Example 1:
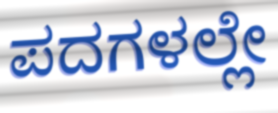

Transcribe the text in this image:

ಪದಗಳಲ್ಲೇ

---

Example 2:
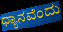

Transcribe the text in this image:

ಧ್ಯಾನವೆಂದು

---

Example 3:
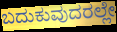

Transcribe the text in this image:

ಬದುಕುವುದರಲ್ಲೇ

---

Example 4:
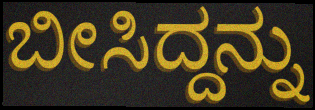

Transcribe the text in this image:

ಬೀಸಿದ್ದನ್ನು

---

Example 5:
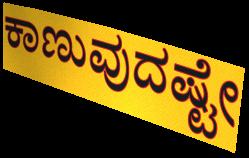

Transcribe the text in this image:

ಕಾಣುವುದಷ್ಟೇ